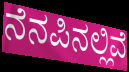
ನೆನಪಿನಲ್ಲಿವೆ